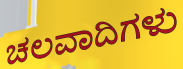
ಚಲವಾದಿಗಳು